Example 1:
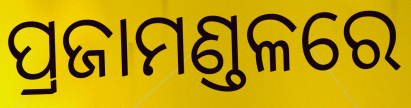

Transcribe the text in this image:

ପ୍ରଜାମଣ୍ଡଳରେ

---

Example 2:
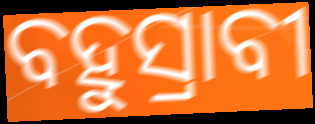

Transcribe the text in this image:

ବହୁସ୍ରାବୀ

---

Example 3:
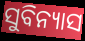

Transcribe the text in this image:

ସୁବିନ୍ୟାସ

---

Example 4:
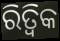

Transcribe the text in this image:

ରିତ୍ୱିକ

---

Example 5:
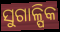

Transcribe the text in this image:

ସୁଗାଳ୍ପିକ